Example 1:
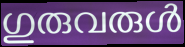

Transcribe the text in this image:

ഗുരുവരുൾ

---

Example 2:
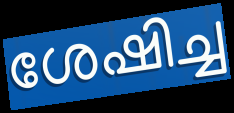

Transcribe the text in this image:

ശേഷിച്ച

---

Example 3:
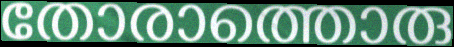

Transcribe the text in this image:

തോരാത്തൊരു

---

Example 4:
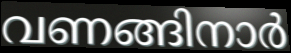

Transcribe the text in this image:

വണങ്ങിനാർ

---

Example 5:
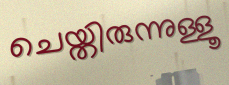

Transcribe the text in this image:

ചെയ്തിരുന്നുള്ളൂ